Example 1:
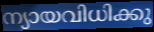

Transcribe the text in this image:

ന്യായവിധിക്കു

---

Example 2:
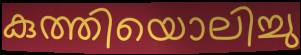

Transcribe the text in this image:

കുത്തിയൊലിച്ചു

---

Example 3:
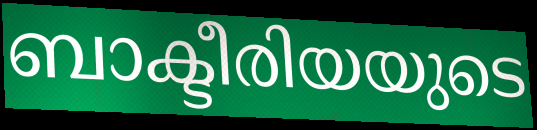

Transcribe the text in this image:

ബാക്ടീരിയയുടെ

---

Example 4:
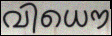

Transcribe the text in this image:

വിധൌ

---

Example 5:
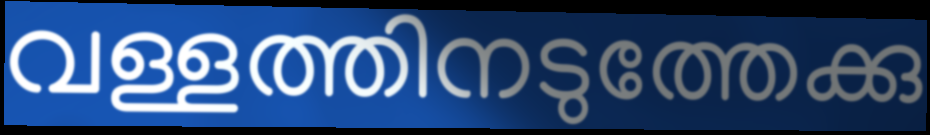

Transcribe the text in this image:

വള്ളത്തിനടുത്തേക്കു